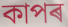
কাপৰ